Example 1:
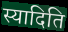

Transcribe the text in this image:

स्यादिति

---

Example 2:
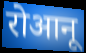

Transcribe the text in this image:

रोआनू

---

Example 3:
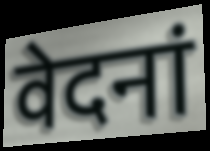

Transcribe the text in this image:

वेदनां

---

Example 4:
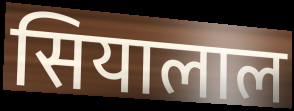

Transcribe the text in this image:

सियालाल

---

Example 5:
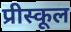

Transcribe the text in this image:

प्रीस्कूल